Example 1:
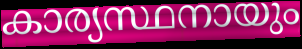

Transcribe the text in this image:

കാര്യസ്ഥനായും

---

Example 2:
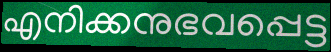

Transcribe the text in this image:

എനിക്കനുഭവപ്പെട്ട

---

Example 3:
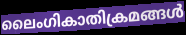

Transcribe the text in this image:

ലൈംഗികാതിക്രമങ്ങൾ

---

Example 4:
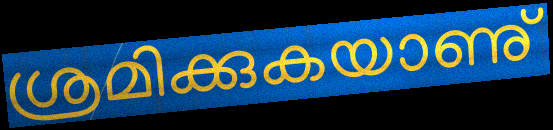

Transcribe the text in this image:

ശ്രമിക്കുകയാണു്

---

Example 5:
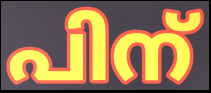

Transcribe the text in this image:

പിന്